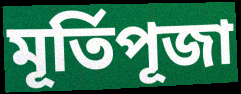
মূৰ্তিপূজা